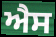
ਐਸ